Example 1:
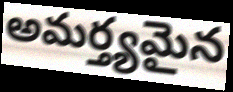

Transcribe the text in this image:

అమర్త్యమైన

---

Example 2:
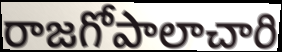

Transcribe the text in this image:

రాజగోపాలాచారి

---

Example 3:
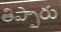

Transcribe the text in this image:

తిప్పారు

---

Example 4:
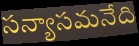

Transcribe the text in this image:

సన్యాసమనేది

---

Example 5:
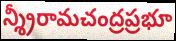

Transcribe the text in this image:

న్శ్రీరామచంద్రప్రభూ